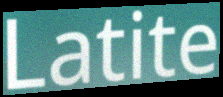
Latite